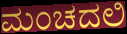
ಮಂಚದಲಿ